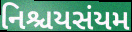
નિશ્ચયસંયમ